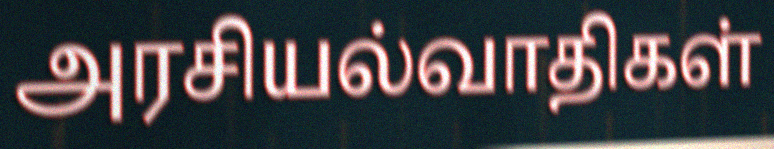
அரசியல்வாதிகள்